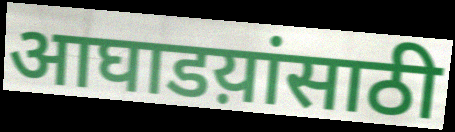
आघाडय़ांसाठी